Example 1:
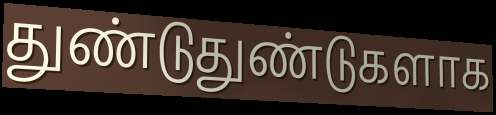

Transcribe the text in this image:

துண்டுதுண்டுகளாக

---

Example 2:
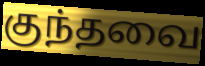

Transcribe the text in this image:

குந்தவை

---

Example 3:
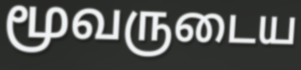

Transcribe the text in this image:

மூவருடைய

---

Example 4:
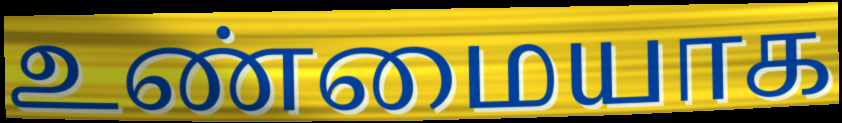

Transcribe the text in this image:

உண்மையாக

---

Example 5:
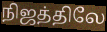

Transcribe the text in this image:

நிஜத்திலே